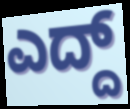
ಎದ್ದ್